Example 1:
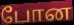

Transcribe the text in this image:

போன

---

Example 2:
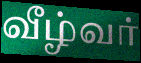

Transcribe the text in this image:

வீழ்வர்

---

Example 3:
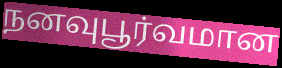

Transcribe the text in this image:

நனவுபூர்வமான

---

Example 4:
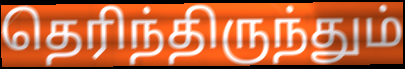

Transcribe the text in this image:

தெரிந்திருந்தும்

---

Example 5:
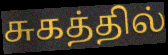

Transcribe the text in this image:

சுகத்தில்